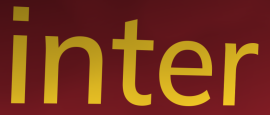
inter